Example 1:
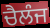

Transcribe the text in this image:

ਚੈਲੰਜ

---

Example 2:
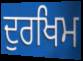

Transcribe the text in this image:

ਦੁਰਖਿਮ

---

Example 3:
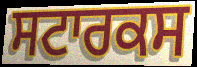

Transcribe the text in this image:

ਸਟਾਰਕਸ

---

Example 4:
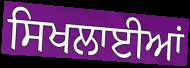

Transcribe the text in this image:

ਸਿਖਲਾਈਆਂ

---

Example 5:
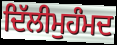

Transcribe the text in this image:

ਦਿੱਲੀਮੁਹੰਮਦ